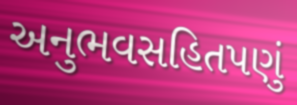
અનુભવસહિતપણું